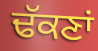
ਢੱਕਣਾਂ